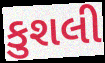
કુશલી